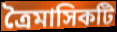
ত্রৈমাসিকটি